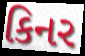
કિનર